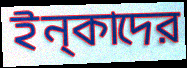
ইন্‌কাদের